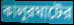
কালুরঘাটের